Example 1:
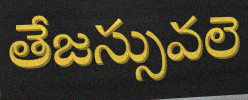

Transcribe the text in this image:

తేజస్సువలె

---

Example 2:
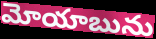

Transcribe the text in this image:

మోయాబును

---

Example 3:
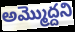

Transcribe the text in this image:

అమ్మొద్దని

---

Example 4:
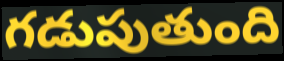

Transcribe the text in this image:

గడుపుతుంది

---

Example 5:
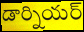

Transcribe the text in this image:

డార్నియర్